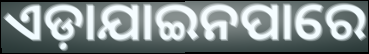
ଏଡ଼ାଯାଇନପାରେ